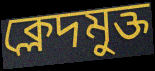
ক্লেদমুক্ত